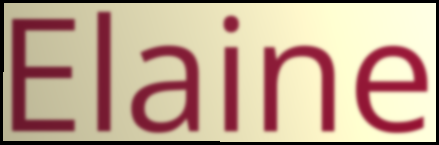
Elaine